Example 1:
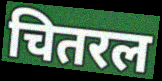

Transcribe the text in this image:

चितरल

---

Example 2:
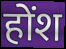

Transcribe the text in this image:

होंश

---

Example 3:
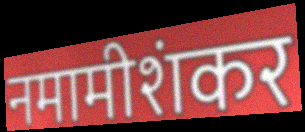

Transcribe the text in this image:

नमामीशंकर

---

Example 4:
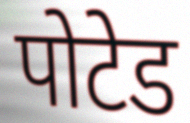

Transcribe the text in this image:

पोटेड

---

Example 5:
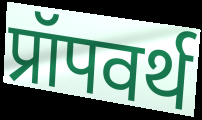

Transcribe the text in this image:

प्रॉपवर्थ